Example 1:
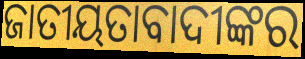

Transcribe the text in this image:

ଜାତୀୟତାବାଦୀଙ୍କର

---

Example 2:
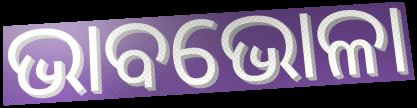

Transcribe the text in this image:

ଭାବଭୋଳା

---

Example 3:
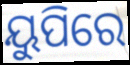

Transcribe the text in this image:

ୟୁପିରେ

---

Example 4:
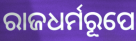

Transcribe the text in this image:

ରାଜଧର୍ମରୂପେ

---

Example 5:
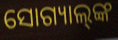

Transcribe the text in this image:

ସୋଗ୍ୟାଲ୍‌ଙ୍କ